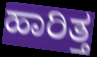
ಹಾರಿತ್ತ